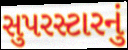
સુપરસ્ટારનું